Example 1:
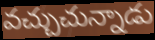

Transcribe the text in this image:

వచ్చుచున్నాడు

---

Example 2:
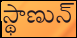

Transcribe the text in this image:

స్థాణున్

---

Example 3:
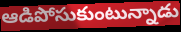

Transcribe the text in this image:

ఆడిపోసుకుంటున్నాడు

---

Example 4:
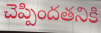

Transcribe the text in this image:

చెప్పిందతనికి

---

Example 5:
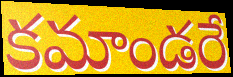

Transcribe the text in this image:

కమాండరే